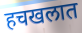
हचखलात